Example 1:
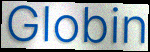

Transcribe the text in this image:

Globin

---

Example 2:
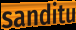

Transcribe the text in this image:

sanditu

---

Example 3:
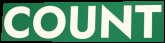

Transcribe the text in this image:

COUNT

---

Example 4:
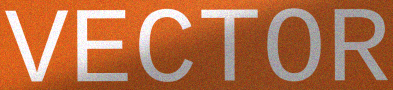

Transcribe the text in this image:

VECTOR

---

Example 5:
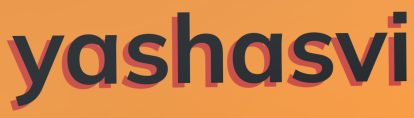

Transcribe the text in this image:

yashasvi